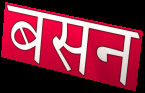
बसन